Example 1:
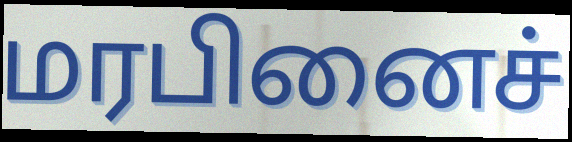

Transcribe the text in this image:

மரபினைச்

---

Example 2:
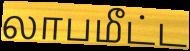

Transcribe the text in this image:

லாபமீட்ட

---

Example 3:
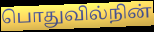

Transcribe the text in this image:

பொதுவில்நின்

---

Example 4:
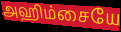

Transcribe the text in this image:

அஹிம்சையே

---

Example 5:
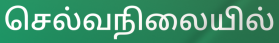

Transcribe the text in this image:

செல்வநிலையில்